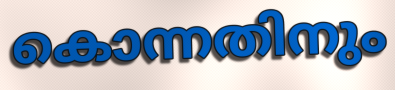
കൊന്നതിനും